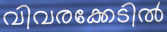
വിവരക്കേടിൽ